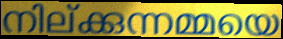
നില്ക്കുന്നമ്മയെ